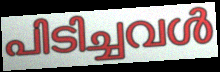
പിടിച്ചവൾ